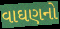
વાઘણનો